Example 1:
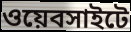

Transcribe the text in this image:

ওয়েবসাইটে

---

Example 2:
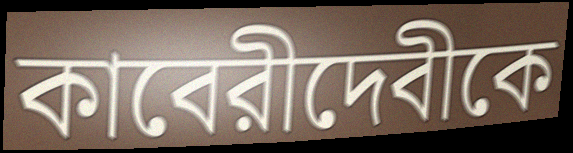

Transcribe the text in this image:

কাবেরীদেবীকে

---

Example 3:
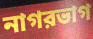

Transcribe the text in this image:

নাগরভাগ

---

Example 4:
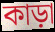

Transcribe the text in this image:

কাড়া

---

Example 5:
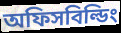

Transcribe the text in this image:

অফিসবিল্ডিং